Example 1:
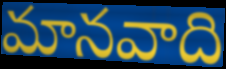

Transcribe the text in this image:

మానవాది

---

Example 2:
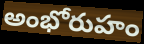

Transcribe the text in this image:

అంభోరుహం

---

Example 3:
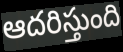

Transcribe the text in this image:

ఆదరిస్తుంది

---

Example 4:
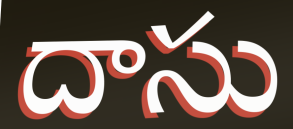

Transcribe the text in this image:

దాసు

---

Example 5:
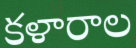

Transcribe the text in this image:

కళారాల